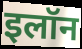
इलॉन